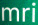
mri